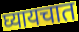
घ्यायचात